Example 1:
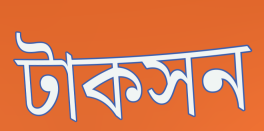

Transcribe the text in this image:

টাকসন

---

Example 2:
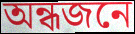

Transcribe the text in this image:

অন্ধজনে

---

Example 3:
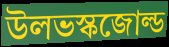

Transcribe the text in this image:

উলভস্কজোল্ড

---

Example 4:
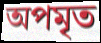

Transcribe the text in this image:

অপমৃত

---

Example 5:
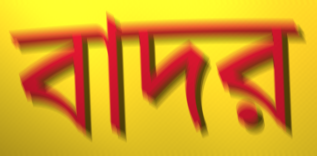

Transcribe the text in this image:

বাদর